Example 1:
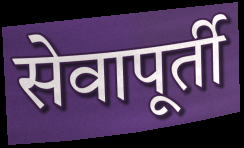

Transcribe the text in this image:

सेवापूर्ती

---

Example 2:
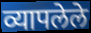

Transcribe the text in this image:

व्यापलेले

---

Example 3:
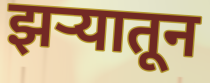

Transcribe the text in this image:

झऱ्यातून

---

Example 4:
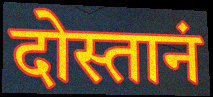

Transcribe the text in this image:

दोस्तानं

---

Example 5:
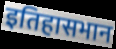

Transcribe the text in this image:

इतिहासभान